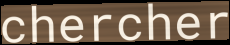
chercher